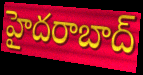
హైదరాబాద్